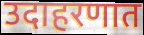
उदाहरणात